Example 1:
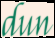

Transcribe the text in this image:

dun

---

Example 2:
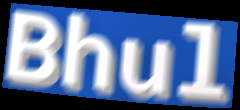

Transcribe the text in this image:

Bhul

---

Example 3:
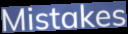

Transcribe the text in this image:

Mistakes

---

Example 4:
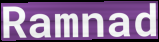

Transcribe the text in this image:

Ramnad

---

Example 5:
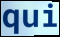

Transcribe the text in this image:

qui